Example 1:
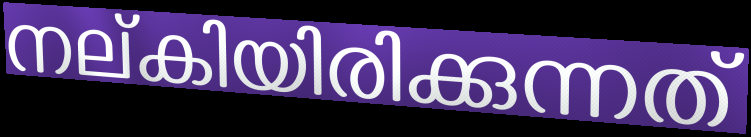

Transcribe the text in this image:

നല്‌കിയിരിക്കുന്നത്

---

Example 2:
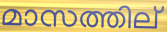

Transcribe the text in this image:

മാസത്തില്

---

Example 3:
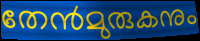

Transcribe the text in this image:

തേൻമുരുകനും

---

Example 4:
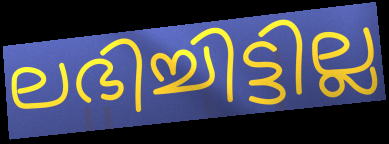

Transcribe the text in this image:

ലഭിച്ചിട്ടില്ല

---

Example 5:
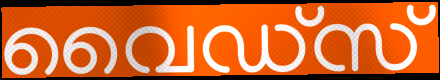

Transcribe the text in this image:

വൈഡ്സ്